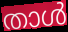
താൾ